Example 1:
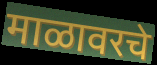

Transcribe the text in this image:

माळावरचे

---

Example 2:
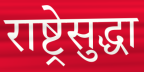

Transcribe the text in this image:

राष्ट्रेसुद्धा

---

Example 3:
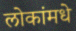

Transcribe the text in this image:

लोकांमधे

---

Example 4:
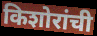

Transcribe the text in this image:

किशोरांची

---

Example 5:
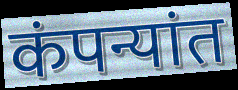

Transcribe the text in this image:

कंपन्यांत